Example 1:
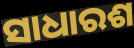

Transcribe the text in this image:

ସାଧାରଶ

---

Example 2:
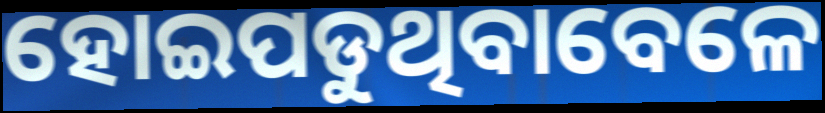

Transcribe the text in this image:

ହୋଇପଡୁଥିବାବେଳେ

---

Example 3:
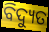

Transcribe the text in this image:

ବିଦ୍ଯୁତ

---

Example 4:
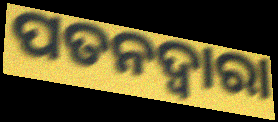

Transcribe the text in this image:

ପତନଦ୍ୱାରା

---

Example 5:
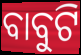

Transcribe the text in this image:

ବାବୁଟି